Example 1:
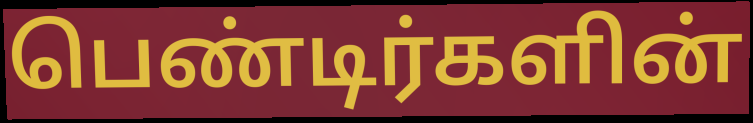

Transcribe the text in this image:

பெண்டிர்களின்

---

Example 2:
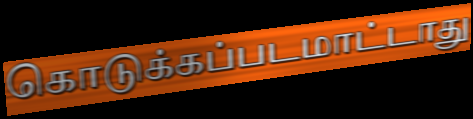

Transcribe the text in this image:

கொடுக்கப்படமாட்டாது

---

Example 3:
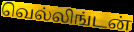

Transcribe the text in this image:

வெல்லிங்டன்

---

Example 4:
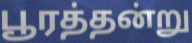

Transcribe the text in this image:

பூரத்தன்று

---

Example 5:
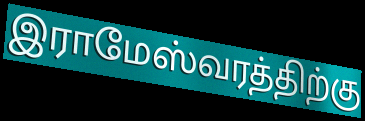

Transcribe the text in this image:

இராமேஸ்வரத்திற்கு